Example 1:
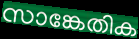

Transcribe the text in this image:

സാങ്കേതിക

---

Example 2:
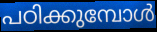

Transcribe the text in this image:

പഠിക്കുമ്പോൾ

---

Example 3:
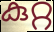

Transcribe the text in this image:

കുറ്റ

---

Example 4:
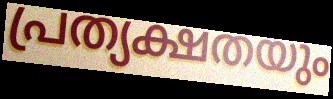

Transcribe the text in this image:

പ്രത്യക്ഷതയും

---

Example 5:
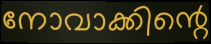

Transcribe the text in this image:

നോവാക്കിന്റെ